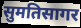
सुमतिसागर